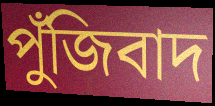
পুঁজিবাদ